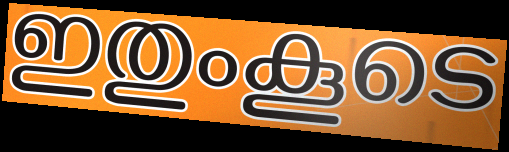
ഇതുംകൂടെ